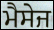
ਮੈਸੇਜ